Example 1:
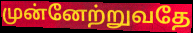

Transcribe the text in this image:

முன்னேற்றுவதே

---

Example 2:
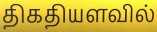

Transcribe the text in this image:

திகதியளவில்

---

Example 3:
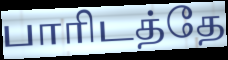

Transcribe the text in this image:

பாரிடத்தே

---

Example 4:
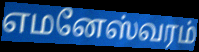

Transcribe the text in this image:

எமனேஸ்வரம்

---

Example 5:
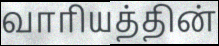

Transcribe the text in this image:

வாரியத்தின்